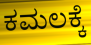
ಕಮಲಕ್ಕೆ